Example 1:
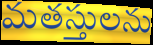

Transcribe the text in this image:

మతస్తులను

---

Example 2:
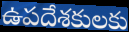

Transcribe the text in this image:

ఉపదేశకులకు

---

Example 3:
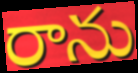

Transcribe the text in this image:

రాను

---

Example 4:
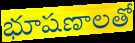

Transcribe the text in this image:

భూషణాలతో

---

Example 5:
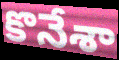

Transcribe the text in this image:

కొనేశా